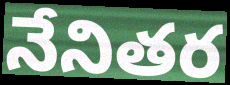
నేనితర